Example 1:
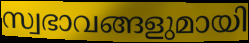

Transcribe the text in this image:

സ്വഭാവങ്ങളുമായി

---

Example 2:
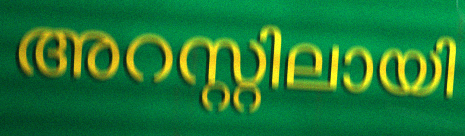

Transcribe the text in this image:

അറസ്റ്റിലായി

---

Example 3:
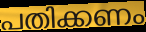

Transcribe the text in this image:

പതിക്കണം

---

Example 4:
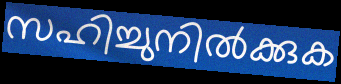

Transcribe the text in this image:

സഹിച്ചുനിൽക്കുക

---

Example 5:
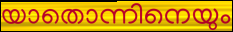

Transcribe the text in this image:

യാതൊന്നിനെയും